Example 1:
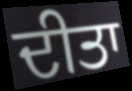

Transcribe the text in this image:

ਦੀਤਾ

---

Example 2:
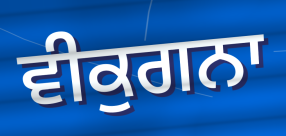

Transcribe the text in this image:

ਵੀਕੁਗਨਾ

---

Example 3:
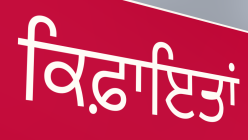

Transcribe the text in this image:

ਕਿਫ਼ਾਇਤਾਂ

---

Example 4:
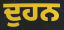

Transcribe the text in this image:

ਦੁਹਨ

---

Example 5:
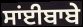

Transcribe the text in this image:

ਸਾਂਈਬਾਬੇ